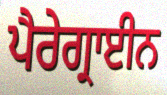
ਪੈਰੇਗ੍ਰਾਈਨ